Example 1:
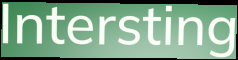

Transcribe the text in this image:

Intersting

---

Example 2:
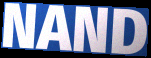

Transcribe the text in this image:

NAND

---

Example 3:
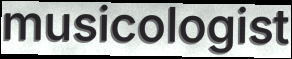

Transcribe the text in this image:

musicologist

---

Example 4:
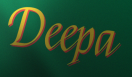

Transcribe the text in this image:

Deepa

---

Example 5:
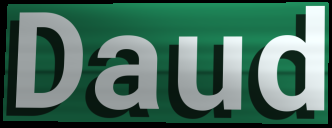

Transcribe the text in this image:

Daud